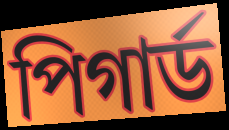
পিগার্ড